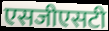
एसजीएसटी